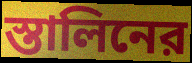
স্তালিনের